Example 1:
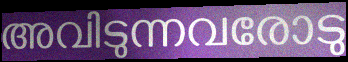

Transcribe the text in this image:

അവിടുന്നവരോടു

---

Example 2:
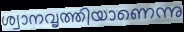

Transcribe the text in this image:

ശ്വാനവൃത്തിയാണെന്നു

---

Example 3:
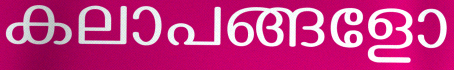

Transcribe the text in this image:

കലാപങ്ങളോ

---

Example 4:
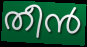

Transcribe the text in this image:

തീൻ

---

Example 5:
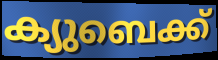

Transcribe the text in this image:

ക്യുബെക്ക്